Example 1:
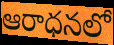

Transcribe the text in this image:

ఆరాధనలో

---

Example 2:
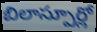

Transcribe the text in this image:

బిలాస్పూర్లో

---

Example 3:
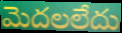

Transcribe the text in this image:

మెదలలేదు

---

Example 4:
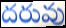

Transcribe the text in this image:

దరువు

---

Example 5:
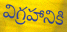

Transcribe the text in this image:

విగ్రహానికి